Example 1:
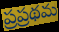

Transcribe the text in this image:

ప్రప్రథమ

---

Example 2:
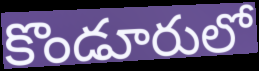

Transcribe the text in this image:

కొండూరులో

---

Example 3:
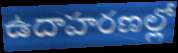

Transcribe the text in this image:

ఉదాహరణల్లో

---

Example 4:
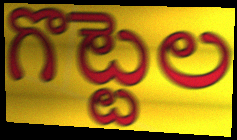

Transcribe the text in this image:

గొట్టెల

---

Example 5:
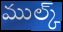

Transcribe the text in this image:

ముల్క్